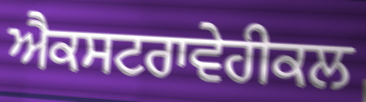
ਐਕਸਟਰਾਵੇਹੀਕਲ